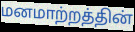
மனமாற்றத்தின்